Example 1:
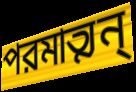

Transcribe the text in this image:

পরমাত্মন্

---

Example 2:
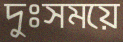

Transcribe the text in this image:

দুঃসময়ে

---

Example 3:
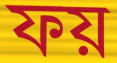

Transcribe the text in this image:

ফয়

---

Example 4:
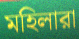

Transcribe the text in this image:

মহিলারা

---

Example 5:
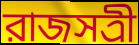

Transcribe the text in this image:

রাজসত্রী